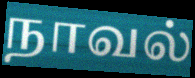
நாவல்